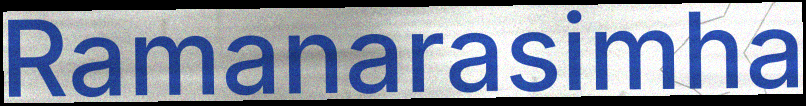
Ramanarasimha